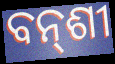
ବନ୍‍ଶୀ